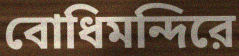
বোধিমন্দিরে